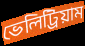
ভেলিট্রিয়াম